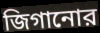
জিগানোর